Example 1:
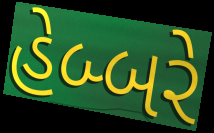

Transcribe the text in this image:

હેબ્બરે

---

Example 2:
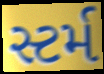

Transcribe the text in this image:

સ્ટર્મ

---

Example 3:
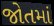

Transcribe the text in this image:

જોતમાં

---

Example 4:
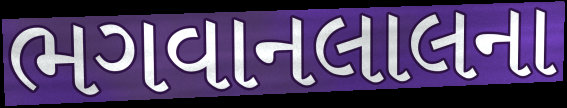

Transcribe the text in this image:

ભગવાનલાલના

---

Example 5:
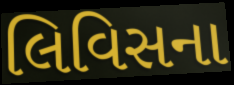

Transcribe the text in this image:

લિવિસના